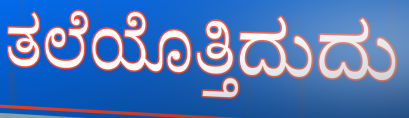
ತಲೆಯೊತ್ತಿದುದು